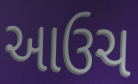
આઉચ